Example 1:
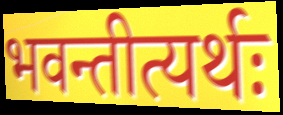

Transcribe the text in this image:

भवन्तीत्यर्थः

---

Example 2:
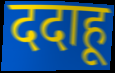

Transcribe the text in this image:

ददाहू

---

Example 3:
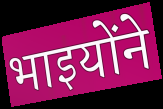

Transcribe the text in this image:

भाइयोंने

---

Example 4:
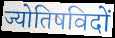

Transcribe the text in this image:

ज्योतिषविदों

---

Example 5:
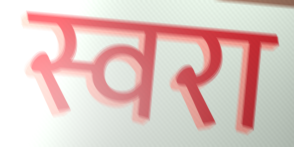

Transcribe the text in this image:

स्‍वरा